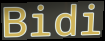
Bidi